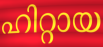
ഹിറ്റായ